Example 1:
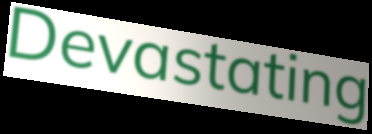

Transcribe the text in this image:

Devastating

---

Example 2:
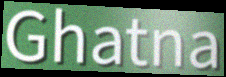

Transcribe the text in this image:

Ghatna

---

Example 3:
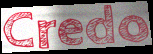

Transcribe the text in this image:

Credo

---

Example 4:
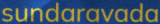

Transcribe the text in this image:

sundaravada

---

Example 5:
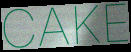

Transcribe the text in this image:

CAKE